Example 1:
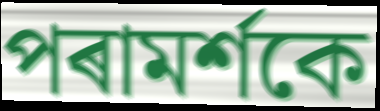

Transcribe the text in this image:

পৰামৰ্শকে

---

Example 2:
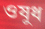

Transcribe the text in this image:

ওষুধ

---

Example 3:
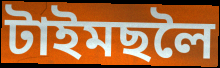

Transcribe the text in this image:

টাইমছলৈ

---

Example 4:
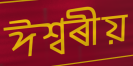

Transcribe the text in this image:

ঈশ্বৰীয়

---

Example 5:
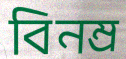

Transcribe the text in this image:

বিনম্ৰ